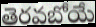
తెరవబోయే